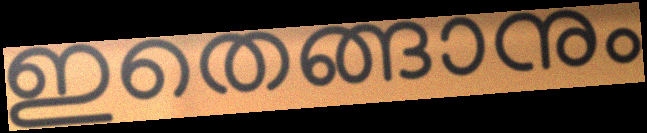
ഇതെങ്ങാനും